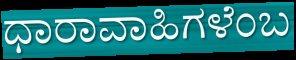
ಧಾರಾವಾಹಿಗಳೆಂಬ